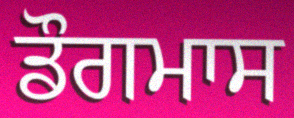
ਡੌਗਮਾਸ